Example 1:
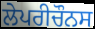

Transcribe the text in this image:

ਲੇਪਰੀਚੌਨਸ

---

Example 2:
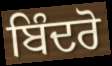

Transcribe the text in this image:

ਬਿੰਦਰੋ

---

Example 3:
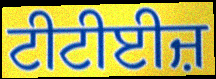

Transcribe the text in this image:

ਟੀਟੀਈਜ਼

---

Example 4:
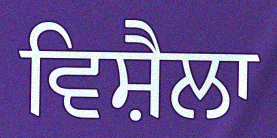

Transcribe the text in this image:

ਵਿਸ਼ੈਲਾ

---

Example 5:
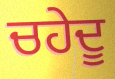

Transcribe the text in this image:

ਚਹੇਦੂ